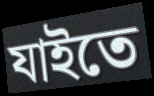
যাইতে